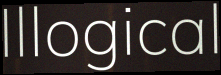
Illogical